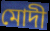
মোদী